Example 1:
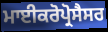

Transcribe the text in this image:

ਮਾਈਕਰੋਪ੍ਰੋਸੈਸਰ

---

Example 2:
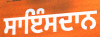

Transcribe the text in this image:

ਸਾਇੰਸਦਾਨ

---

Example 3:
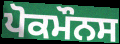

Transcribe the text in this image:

ਪੋਕਮੌਨਸ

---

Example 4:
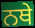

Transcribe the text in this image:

ਨਥੇ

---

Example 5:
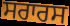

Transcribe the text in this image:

ਸਰਾਰਸ